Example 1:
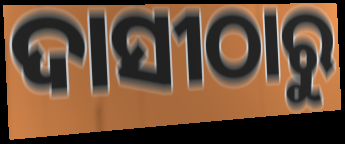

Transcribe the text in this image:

ଦାସୀଠାରୁ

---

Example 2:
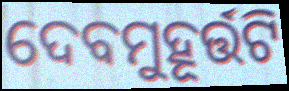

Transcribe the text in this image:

ଦେବମୁହୂର୍ତ୍ତଟି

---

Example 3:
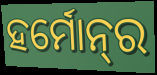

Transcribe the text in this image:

ହର୍ମୋନ୍‌ର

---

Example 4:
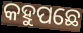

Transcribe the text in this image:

କହୁପଛେ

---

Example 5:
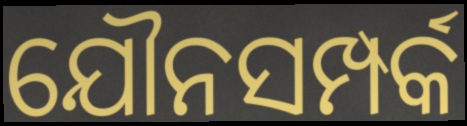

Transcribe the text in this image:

ଯୌନସମ୍ପର୍କ